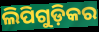
ଲିପିଗୁଡ଼ିକର